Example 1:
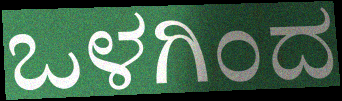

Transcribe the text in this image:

ಒಳಗಿಂದ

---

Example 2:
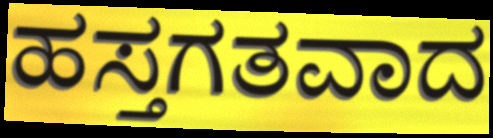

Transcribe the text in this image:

ಹಸ್ತಗತವಾದ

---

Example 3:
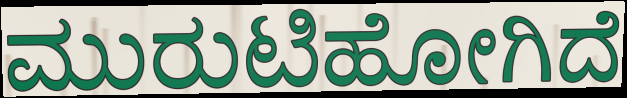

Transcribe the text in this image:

ಮುರುಟಿಹೋಗಿದೆ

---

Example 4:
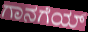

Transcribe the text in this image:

ಗಾನಗೆಯ್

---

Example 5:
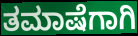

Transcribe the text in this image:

ತಮಾಷೆಗಾಗಿ